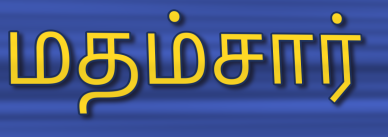
மதம்சார்